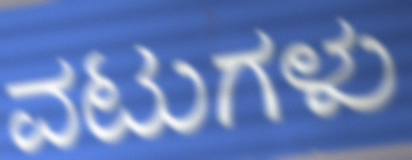
ವಟುಗಳು